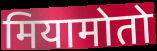
मियामोतो